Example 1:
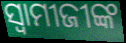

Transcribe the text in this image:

ସ୍ଵାମୀଜୀଙ୍କ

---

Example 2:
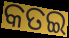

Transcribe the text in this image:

କତଇ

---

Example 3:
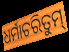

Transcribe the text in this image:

ଧର୍ମାଚରିତୁମ୍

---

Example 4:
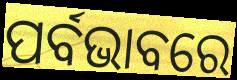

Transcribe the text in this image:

ପର୍ବଭାବରେ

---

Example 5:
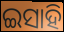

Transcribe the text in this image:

ଇସାହି